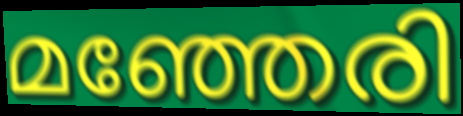
മഞ്ഞേരി